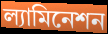
ল্যামিনেশন